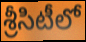
శ్రీసిటీలో